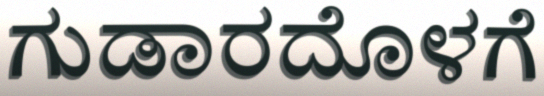
ಗುಡಾರದೊಳಗೆ